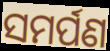
ସମର୍ପଣ